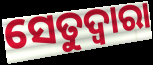
ସେତୁଦ୍ୱାରା